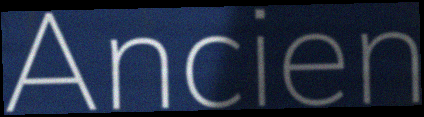
Ancien